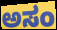
ಅಸಂ